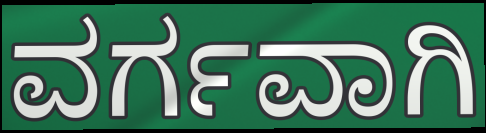
ವರ್ಗವಾಗಿ